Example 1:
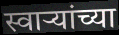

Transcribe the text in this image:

स्वाऱ्यांच्या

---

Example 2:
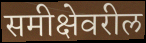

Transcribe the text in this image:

समीक्षेवरील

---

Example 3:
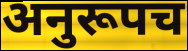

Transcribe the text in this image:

अनुरूपच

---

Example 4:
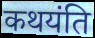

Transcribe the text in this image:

कथयंति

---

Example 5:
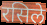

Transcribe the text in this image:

रसिले